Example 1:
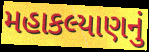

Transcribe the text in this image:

મહાકલ્યાણનું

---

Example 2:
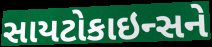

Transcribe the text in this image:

સાયટોકાઇન્સને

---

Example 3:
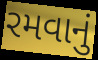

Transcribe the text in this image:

રમવાનું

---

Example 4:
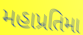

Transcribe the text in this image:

મહાપ્રતિમા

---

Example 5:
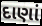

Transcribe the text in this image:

દાણાં